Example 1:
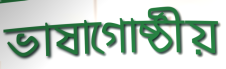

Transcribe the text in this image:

ভাষাগোষ্ঠীয়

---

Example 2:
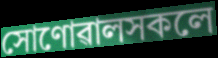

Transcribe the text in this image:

সোণোৱালসকলে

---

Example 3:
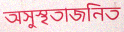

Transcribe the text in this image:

অসুস্থতাজনিত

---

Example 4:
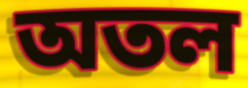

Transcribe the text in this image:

অতল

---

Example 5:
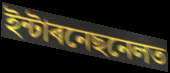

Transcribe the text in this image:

ইন্টাৰনেছনেলত